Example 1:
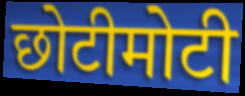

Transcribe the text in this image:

छोटीमोटी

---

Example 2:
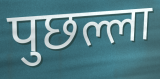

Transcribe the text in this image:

पुछल्ला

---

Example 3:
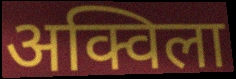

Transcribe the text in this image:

अक्विला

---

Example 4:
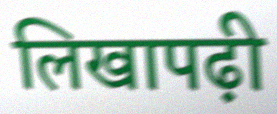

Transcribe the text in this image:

लिखापढ़ी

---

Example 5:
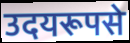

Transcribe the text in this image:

उदयरूपसे